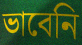
ভাবেনি